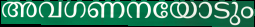
അവഗണനയോടും